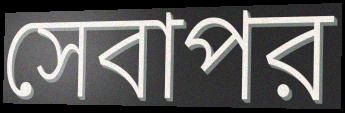
সেবাপর